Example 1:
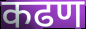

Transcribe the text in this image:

कढण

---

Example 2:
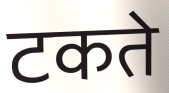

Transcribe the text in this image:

टकते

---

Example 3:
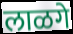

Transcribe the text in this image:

लाळगे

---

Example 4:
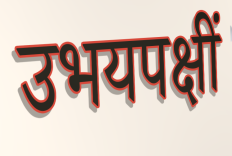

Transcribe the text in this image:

उभयपक्षीं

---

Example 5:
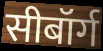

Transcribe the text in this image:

सीबॉर्ग